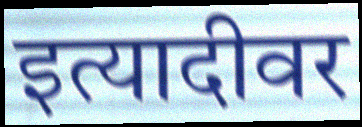
इत्यादीवर